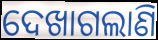
ଦେଖାଗଲାଣି